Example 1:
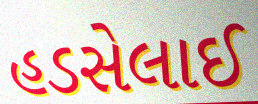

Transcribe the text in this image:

હડસેલાઈ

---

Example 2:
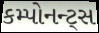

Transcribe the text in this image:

કમ્પોનન્ટ્સ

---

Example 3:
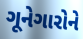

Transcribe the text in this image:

ગૂનેગારોને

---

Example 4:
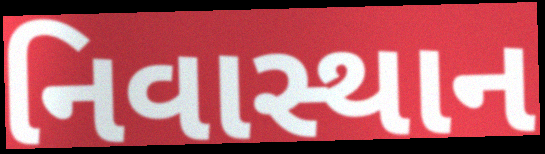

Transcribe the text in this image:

નિવાસ્થાન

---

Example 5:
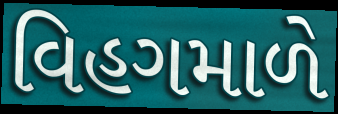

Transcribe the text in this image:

વિહગમાળે